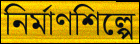
নির্মাণশিল্পে